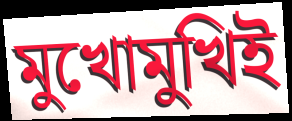
মুখোমুখিই